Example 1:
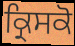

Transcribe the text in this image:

ਕ੍ਰਿਸਕੋ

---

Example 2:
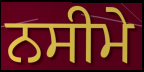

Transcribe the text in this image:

ਨਸੀਮੇ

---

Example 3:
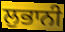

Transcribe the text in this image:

ਲੁਭਾਨੀ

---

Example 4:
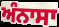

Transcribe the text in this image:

ਅੰਨਾਸਾ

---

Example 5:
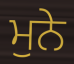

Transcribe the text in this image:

ਮੁਨੇ